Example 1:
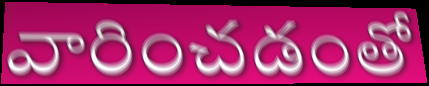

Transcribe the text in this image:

వారించడంతో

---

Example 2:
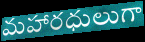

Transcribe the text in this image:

మహారధులుగా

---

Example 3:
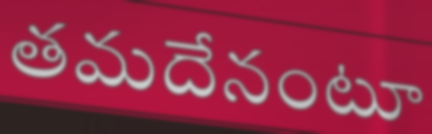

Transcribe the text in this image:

తమదేనంటూ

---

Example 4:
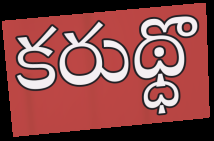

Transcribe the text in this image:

కరుథ్ధొ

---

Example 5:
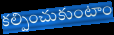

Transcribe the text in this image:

కల్పించుకుంటాం